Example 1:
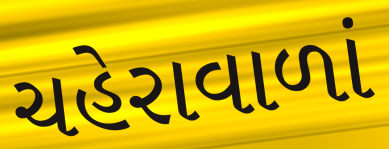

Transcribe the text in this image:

ચહેરાવાળાં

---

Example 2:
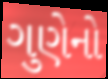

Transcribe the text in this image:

ગુણેનો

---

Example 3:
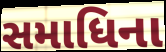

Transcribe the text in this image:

સમાધિના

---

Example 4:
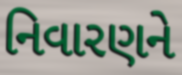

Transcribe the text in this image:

નિવારણને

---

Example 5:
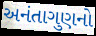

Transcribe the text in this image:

અનંતાગુણનો